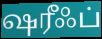
ஷரீஃப்